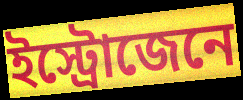
ইস্ট্রোজেনে